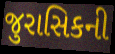
જુરાસિકની